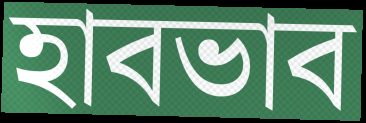
হাবভাব